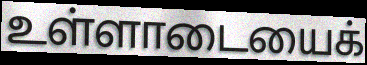
உள்ளாடையைக்